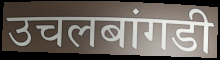
उचलबांगडी